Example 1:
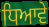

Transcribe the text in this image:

ਧਿਆਵੇ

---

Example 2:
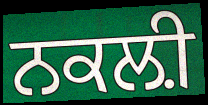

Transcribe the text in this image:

ਨਕਲ਼ੀ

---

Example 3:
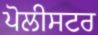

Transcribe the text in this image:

ਪੋਲੀਸਟਰ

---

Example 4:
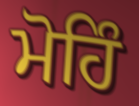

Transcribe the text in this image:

ਮੋਹਿੰ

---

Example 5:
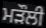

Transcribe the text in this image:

ਮੜੌਲੀ